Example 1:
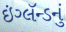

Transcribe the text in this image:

ઇંગ્લૅન્ડનું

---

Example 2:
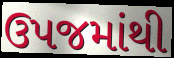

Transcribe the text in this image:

ઉપજમાંથી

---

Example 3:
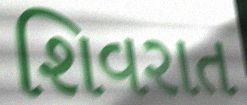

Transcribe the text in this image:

શિવરાત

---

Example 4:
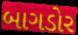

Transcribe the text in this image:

બાગડોર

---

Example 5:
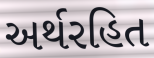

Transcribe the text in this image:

અર્થરહિત